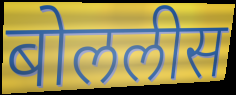
बोललीस